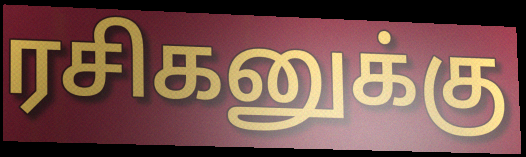
ரசிகனுக்கு